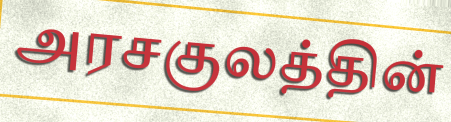
அரசகுலத்தின்